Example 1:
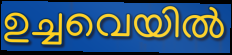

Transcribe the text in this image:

ഉച്ചവെയിൽ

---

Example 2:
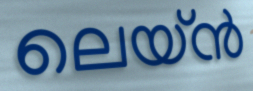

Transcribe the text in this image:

ലെയ്ൻ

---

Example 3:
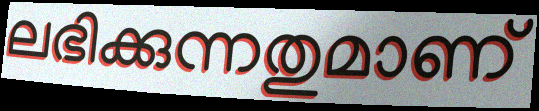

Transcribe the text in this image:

ലഭിക്കുന്നതുമാണ്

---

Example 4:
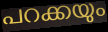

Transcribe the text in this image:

പറക്കയും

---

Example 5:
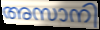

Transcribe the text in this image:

അസാനി